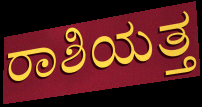
ರಾಶಿಯತ್ತ